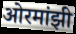
ओरमांझी